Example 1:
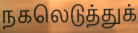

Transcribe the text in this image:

நகலெடுத்துக்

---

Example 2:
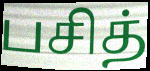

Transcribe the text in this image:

பசித்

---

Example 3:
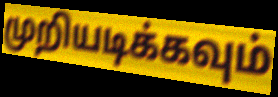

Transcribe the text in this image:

முறியடிக்கவும்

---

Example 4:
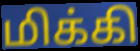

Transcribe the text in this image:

மிக்கி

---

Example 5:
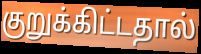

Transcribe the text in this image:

குறுக்கிட்டதால்